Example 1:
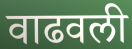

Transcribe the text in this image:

वाढवली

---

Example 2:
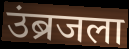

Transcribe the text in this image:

उंब्रजला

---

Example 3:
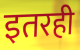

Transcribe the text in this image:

इतरही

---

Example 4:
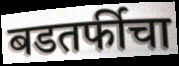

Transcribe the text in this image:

बडतर्फीचा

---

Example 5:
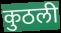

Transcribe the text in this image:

कुठली